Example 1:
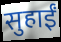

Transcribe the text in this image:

सुहाईं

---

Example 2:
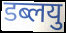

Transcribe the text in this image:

डब्लयु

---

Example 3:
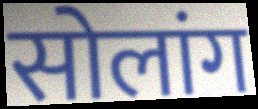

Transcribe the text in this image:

सोलांग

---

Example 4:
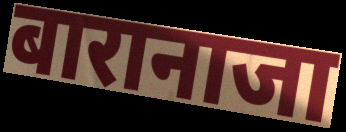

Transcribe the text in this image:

बारानाजा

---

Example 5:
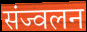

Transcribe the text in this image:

संज्वलन